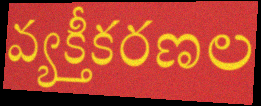
వ్యక్తీకరణల